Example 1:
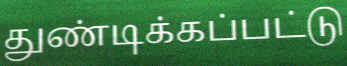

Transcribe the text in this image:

துண்டிக்கப்பட்டு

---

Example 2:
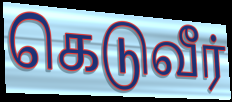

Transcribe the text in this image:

கெடுவீர்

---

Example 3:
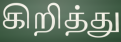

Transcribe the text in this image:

கிறித்து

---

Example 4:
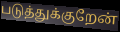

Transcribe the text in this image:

படுத்துக்குறேன்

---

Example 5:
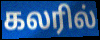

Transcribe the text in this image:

கலரில்